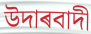
উদাৰবাদী